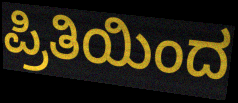
ಪ್ರಿತಿಯಿಂದ